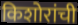
किशोरांची